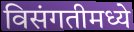
विसंगतीमध्ये